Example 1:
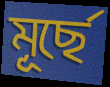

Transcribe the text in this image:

মূর্ছে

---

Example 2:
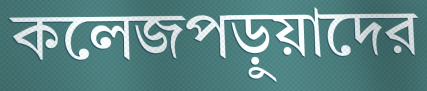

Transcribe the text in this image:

কলেজপড়ুয়াদের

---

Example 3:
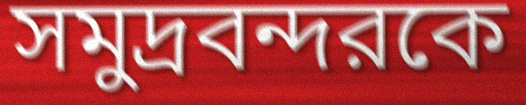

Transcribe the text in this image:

সমুদ্রবন্দরকে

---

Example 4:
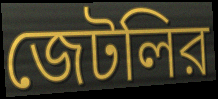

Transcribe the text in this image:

জেটলির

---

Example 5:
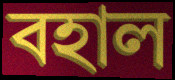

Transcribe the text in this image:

বহাল